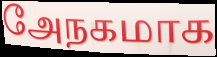
அேநகமாக